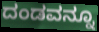
ದಂಡವನ್ನೂ